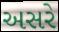
અસરે